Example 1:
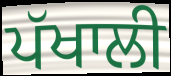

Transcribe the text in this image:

ਪੱਖਾਲੀ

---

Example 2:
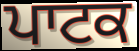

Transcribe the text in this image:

ਪਾਟਕ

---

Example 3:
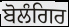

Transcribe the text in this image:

ਬੋਲੰਗਿਰ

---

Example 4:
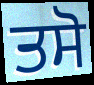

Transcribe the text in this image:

ਤਸੋ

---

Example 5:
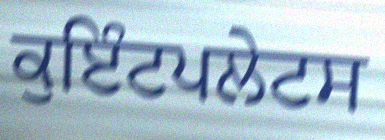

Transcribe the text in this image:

ਕੁਇੰਟਪਲੇਟਸ